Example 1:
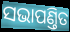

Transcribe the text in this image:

ସଭାପଣ୍ତିତ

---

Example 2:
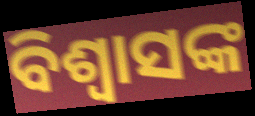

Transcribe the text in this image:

ବିଶ୍ୱାସଙ୍କ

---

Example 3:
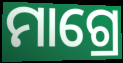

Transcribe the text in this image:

ମାଗ୍ରେ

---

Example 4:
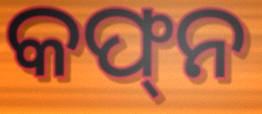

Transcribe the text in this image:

କଫ୍‌ନ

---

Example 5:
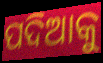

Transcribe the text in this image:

ପଦିଆକୁ